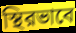
স্থিরভাবে